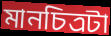
মানচিত্রটা